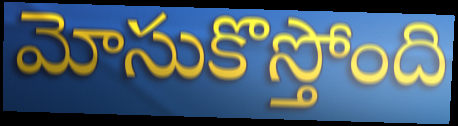
మోసుకొస్తోంది